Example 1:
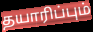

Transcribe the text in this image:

தயாரிப்பும்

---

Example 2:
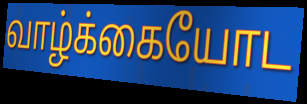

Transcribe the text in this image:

வாழ்க்கையோட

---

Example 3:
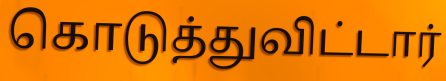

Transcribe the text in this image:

கொடுத்துவிட்டார்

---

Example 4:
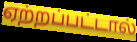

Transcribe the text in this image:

ஏற்றப்பட்டால்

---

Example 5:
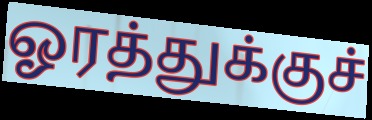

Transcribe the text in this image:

ஓரத்துக்குச்